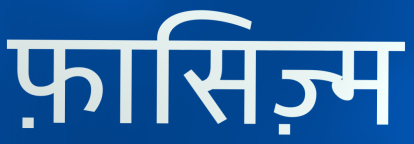
फ़ासिज़्म